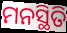
ମନସ୍ଥିତି